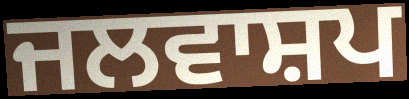
ਜਲਵਾਸ਼ਪ